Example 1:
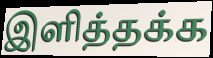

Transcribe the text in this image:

இளித்தக்க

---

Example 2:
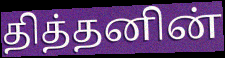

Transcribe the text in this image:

தித்தனின்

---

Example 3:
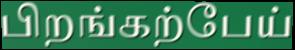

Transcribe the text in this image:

பிறங்கற்பேய்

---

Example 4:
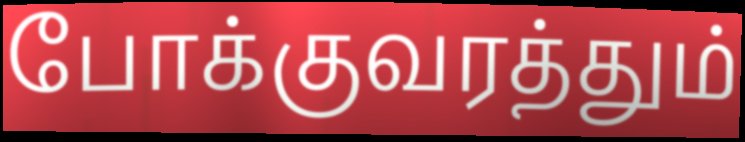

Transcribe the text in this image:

போக்குவரத்தும்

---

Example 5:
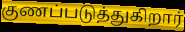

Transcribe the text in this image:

குணப்படுத்துகிறார்